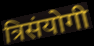
त्रिसंयोगी